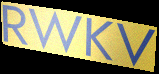
RWKV